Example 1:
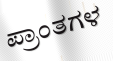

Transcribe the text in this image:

ಪ್ರಾಂತಗಳ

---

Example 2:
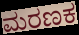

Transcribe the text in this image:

ಮರಣಕ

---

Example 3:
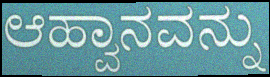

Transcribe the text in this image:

ಆಹ್ವಾನವನ್ನು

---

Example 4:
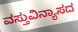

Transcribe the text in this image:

ವಸ್ತುವಿನ್ಯಾಸದ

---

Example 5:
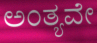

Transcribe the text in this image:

ಅಂತ್ಯವೇ